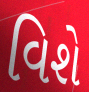
વિશે